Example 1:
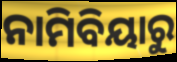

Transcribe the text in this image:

ନାମିବିୟାରୁ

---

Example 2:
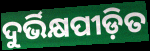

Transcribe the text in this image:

ଦୁର୍ଭିକ୍ଷପୀଡ଼ିତ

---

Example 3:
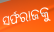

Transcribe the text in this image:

ସର୍ଫରାଜକୁ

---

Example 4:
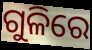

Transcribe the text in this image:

ଗୁଳିରେ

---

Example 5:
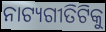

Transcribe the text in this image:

ନାଟ୍ୟଗୀତିଟିକୁ